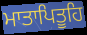
ਮਾਤਾਪਿਤੂਹਿ